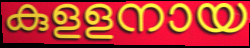
കുളളനായ